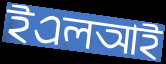
ইএলআই